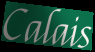
Calais